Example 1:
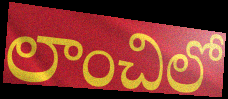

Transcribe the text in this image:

లాంచిలో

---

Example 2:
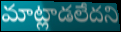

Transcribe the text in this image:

మాట్లాడలేదని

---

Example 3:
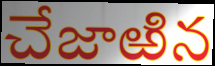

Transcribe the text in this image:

చేజాఱిన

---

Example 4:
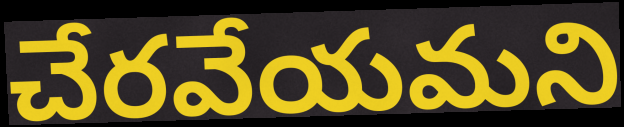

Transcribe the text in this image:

చేరవేయమని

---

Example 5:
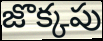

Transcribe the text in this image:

జొక్కపు